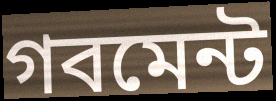
গবমেন্ট